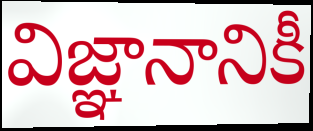
విజ్ఞానానికీ